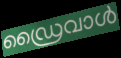
ഡ്രൈവാൾ